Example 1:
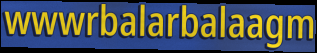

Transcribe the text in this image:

wwwrbalarbalaagm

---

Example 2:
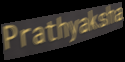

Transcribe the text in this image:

Prathyaksha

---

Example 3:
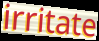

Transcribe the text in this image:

irritate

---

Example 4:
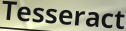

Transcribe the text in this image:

Tesseract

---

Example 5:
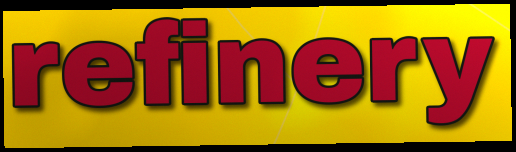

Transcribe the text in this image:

refinery